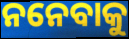
ନନେବାକୁ